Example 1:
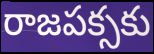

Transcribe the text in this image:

రాజపక్సకు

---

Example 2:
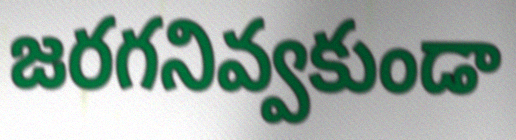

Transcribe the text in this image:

జరగనివ్వకుండా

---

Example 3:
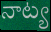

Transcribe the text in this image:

నాట్య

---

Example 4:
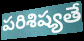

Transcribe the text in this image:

పరిశిష్యతే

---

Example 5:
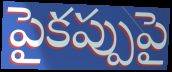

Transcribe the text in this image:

పైకప్పుపై